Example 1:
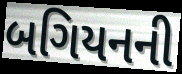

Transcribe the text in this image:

બગિયનની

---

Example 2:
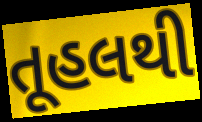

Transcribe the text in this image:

તૂહલથી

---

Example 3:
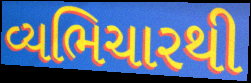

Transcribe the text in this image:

વ્યભિચારથી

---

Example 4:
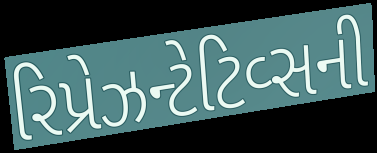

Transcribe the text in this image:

રિપ્રેઝન્ટેટિવ્સની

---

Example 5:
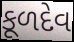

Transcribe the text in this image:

કૂળદેવ